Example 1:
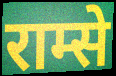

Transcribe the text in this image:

राम्से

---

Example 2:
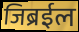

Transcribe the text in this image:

जिब्रईल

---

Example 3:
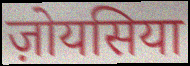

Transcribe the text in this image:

ज़ोयसिया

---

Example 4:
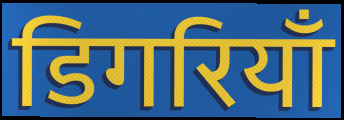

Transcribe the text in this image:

डिगरियाँ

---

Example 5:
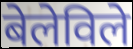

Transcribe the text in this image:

बेलेविले